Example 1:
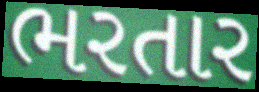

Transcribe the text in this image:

ભરતાર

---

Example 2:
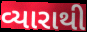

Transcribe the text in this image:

વ્યારાથી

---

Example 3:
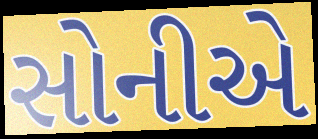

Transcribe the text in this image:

સોનીએ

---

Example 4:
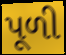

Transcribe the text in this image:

પૂળી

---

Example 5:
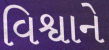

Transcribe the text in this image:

વિશ્વાને